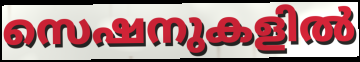
സെഷനുകളിൽ